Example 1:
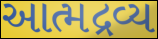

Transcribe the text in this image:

આત્મદ્રવ્ય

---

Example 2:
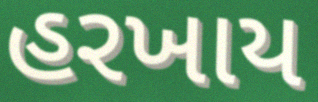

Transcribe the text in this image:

હરખાય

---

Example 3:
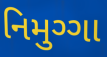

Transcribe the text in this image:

નિમુગ્ગા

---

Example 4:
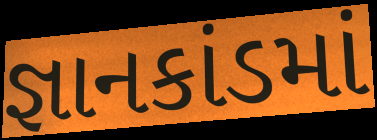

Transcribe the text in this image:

જ્ઞાનકાંડમાં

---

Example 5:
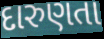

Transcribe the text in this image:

દારુણતા